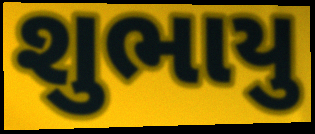
શુભાયુ